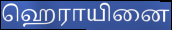
ஹெராயினை